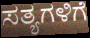
ಸತ್ಯಗಳಿಗೆ